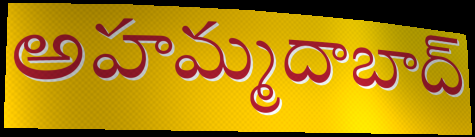
అహమ్మదాబాద్